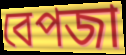
বেপজা